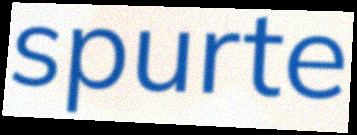
spurte